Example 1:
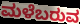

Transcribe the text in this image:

ಮಳೆಬರುವ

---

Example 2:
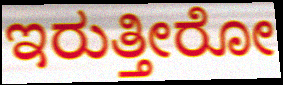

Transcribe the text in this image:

ಇರುತ್ತೀರೋ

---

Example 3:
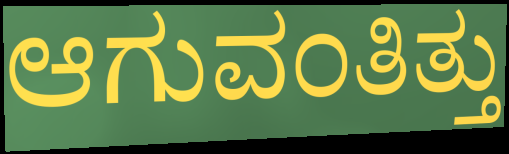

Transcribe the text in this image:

ಆಗುವಂತಿತ್ತು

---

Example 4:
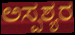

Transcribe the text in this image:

ಅಸ್ಪಶ್ಯರ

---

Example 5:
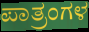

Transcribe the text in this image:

ಪಾತ್ರಂಗಳ